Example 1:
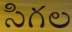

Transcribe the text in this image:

సిగల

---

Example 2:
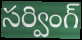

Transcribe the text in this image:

సర్వింగ్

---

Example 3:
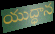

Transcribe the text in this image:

యుద్ధాన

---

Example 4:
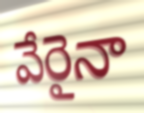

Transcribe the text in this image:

వేరైనా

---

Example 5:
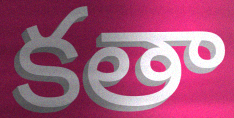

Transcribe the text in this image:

కతా